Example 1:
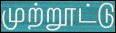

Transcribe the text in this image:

முற்றூட்டு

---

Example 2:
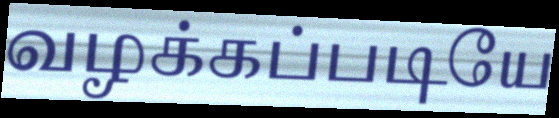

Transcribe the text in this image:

வழக்கப்படியே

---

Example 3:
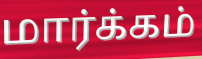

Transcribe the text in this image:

மார்க்கம்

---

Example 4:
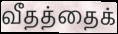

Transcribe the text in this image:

வீதத்தைக்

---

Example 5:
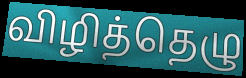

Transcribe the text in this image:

விழித்தெழு